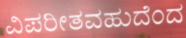
ವಿಪರೀತವಹುದೆಂದ